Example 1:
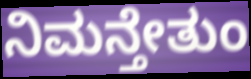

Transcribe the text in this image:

ನಿಮನ್ತೇತುಂ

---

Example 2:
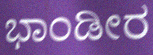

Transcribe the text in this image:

ಭಾಂಡೀರ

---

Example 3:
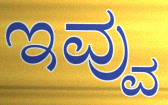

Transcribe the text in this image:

ಇವ್ವು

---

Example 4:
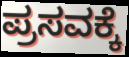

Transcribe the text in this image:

ಪ್ರಸವಕ್ಕೆ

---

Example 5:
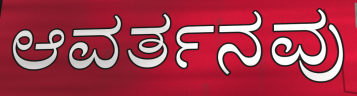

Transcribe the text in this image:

ಆವರ್ತನವು